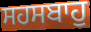
ਸਹਸਬਾਹੁ